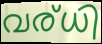
വര്ധി